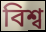
বিশ্ব